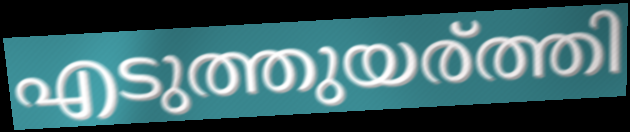
എടുത്തുയര്ത്തി